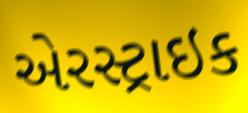
એરસ્ટ્રાઇક